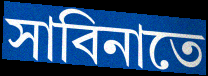
সাবিনাতে